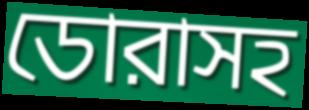
ডোরাসহ